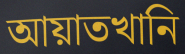
আয়াতখানি